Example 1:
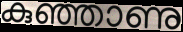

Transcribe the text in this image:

കുഞ്ഞാണു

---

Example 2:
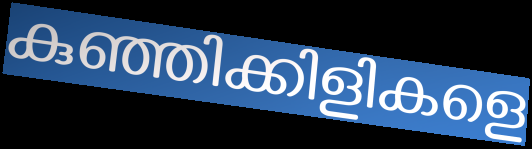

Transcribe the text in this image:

കുഞ്ഞിക്കിളികളെ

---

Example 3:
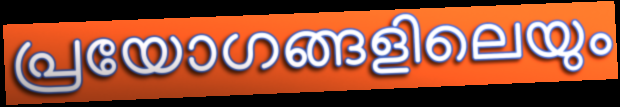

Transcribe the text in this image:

പ്രയോഗങ്ങളിലെയും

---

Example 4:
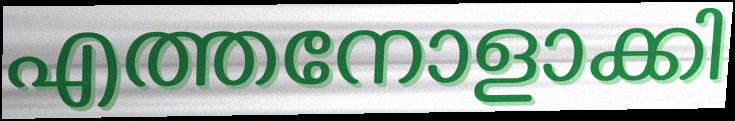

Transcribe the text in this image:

എത്തനോളാക്കി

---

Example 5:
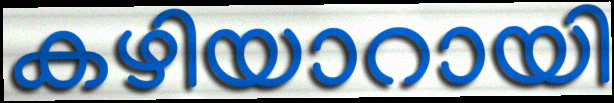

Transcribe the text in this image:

കഴിയാറായി